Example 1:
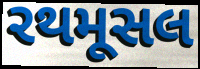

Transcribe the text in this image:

રથમૂસલ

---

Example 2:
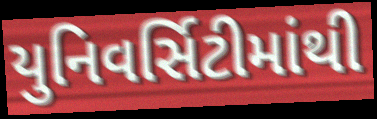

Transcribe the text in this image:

યુનિવર્સિટીમાંથી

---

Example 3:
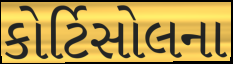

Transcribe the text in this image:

કોર્ટિસોલના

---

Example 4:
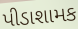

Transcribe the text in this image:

પીડાશામક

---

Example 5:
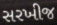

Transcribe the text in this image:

સરખીજ